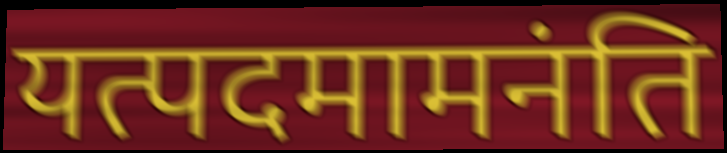
यत्पदमामनंति